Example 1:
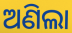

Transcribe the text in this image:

ଅଣିଲା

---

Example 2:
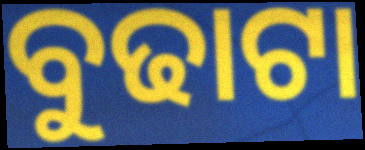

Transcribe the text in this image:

ବୁଢାଟା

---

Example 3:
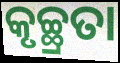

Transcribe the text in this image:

କୃଚ୍ଛ୍ରତା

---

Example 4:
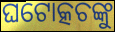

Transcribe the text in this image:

ଘଟୋତ୍କଚଙ୍କୁ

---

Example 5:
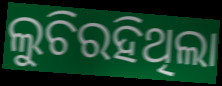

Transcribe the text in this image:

ଲୁଚିରହିଥିଲା